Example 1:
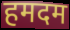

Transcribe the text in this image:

हमदम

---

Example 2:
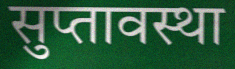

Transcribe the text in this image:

सुप्तावस्था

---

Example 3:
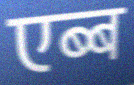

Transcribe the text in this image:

एब्ब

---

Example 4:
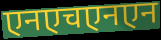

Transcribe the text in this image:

एनएचएनएन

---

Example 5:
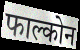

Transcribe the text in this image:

फाल्कोन